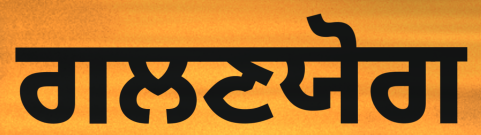
ਗਲਣਯੋਗ